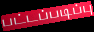
பட்டப்படிப்பு